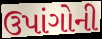
ઉપાંગોની